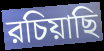
রচিয়াছি